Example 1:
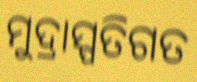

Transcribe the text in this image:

ମୁଦ୍ରାସ୍ପତିଗତ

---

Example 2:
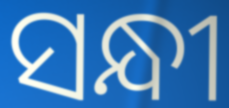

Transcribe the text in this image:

ସନ୍ଧୀ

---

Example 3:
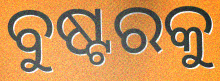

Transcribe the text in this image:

ବୁଷ୍ଟରକୁ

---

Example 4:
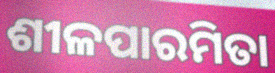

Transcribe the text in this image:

ଶୀଳପାରମିତା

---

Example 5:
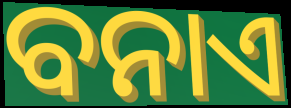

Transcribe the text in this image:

ବନାଏ